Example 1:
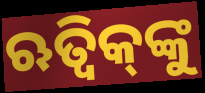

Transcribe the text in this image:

ଋତ୍ୱିକ୍‌ଙ୍କୁ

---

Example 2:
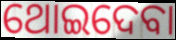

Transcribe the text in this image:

ଥୋଇଦେବା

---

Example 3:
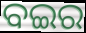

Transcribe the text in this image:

ବଇର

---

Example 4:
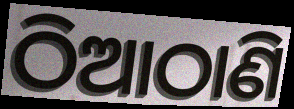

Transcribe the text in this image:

ଠିଆଠାଣି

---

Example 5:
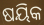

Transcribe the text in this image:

ଷୟିକ